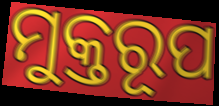
ମୁକ୍ତରୂପ